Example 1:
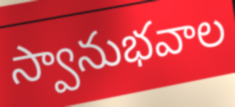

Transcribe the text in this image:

స్వానుభవాల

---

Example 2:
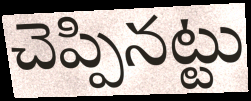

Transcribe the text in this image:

చెప్పినట్టు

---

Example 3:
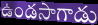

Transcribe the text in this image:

ఉండసాగాడు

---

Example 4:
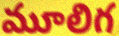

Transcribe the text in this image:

మూలిగ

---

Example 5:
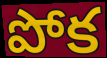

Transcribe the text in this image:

పోక